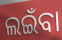
ଲଇଁବା